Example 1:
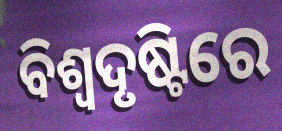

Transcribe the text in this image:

ବିଶ୍ଵଦୃଷ୍ଟିରେ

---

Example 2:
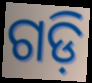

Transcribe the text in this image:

ଗଡ଼ି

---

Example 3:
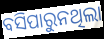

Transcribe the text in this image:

ବସିପାରୁନଥିଲା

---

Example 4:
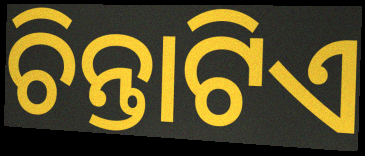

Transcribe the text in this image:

ଚିନ୍ତାଟିଏ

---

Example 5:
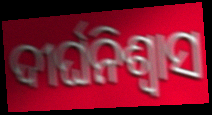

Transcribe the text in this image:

ଦୀର୍ଘନିଶ୍ବାସ